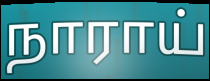
நாராய்